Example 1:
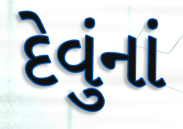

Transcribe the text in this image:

દેવુંનાં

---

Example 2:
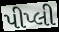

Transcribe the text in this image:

પીપ્લી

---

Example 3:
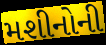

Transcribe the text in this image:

મશીનોની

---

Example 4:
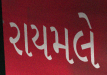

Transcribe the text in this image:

રાયમલે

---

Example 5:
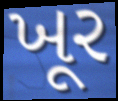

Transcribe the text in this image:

ખૂર